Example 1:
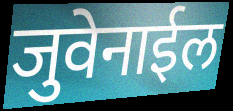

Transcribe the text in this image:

जुवेनाईल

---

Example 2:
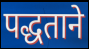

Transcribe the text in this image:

पद्धताने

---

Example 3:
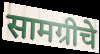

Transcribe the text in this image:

सामग्रीचे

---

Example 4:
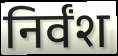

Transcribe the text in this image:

निर्वंश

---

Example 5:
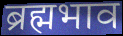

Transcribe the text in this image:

ब्रह्मभाव